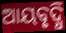
ଆୟବୃଦ୍ଧି